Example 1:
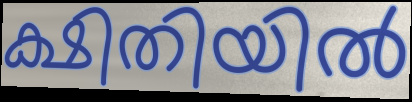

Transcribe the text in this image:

ക്ഷിതിയിൽ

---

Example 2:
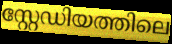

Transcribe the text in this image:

സ്റ്റേഡിയത്തിലെ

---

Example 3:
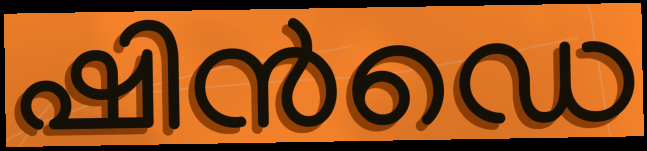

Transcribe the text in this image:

ഷിൻഡെ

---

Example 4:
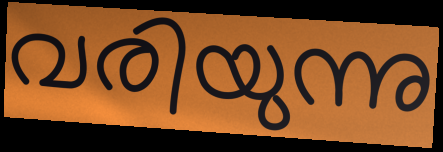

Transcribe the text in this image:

വരിയുന്നു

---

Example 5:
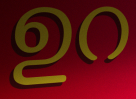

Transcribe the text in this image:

ഉറ